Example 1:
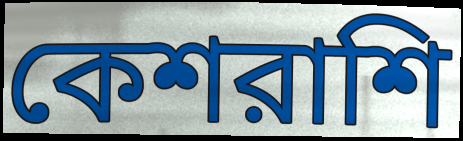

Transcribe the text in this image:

কেশরাশি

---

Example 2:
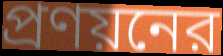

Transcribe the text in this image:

প্রণয়নের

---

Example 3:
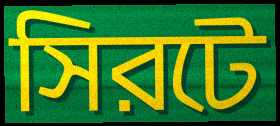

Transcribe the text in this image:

সিরটে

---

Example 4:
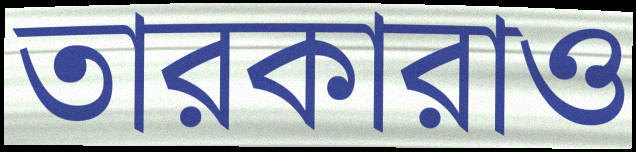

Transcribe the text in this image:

তারকারাও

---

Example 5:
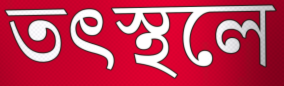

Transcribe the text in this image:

তৎস্থলে